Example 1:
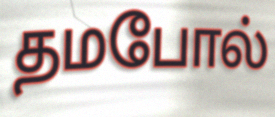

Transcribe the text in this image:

தமபோல்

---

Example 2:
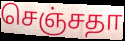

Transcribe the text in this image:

செஞ்சதா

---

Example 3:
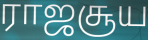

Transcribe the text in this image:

ராஜசூய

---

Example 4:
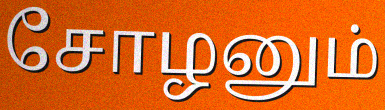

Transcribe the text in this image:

சோழனும்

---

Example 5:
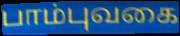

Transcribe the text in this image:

பாம்புவகை